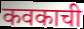
कवकाची